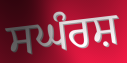
ਸਘੰਰਸ਼